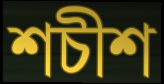
শচীশ